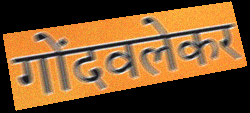
गोंदवलेकर